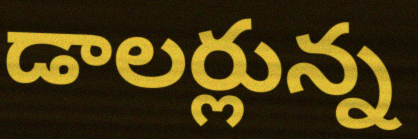
డాలర్లున్న